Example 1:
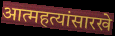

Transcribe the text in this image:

आत्महत्यांसारखे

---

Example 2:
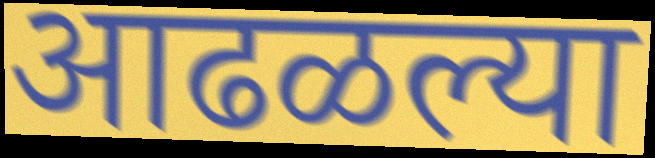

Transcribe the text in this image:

आढळल्या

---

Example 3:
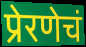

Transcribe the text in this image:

प्रेरणेचं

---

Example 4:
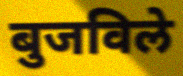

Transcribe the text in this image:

बुजविले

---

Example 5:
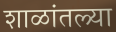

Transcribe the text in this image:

शाळांतल्या